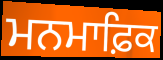
ਮਨਮਾਫ਼ਿਕ